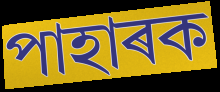
পাহাৰক